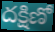
దక్షిణో